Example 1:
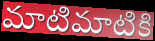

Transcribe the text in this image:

మాటిమాటికి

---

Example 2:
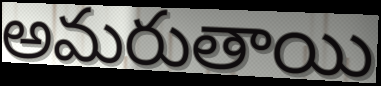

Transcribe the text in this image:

అమరుతాయి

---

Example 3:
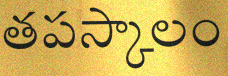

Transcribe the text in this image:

తపస్కాలం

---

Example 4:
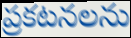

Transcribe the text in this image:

ప్రకటనలను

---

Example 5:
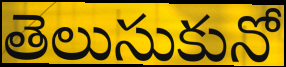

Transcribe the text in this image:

తెలుసుకునో